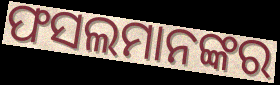
ଫସଲମାନଙ୍କର